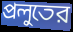
প্রলুতের